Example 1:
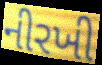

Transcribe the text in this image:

નીરખી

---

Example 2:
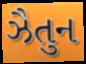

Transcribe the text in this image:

ઝૈતુન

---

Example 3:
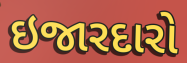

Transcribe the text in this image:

ઇજારદારો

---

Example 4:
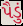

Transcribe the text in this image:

પૈડું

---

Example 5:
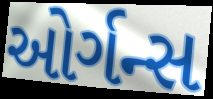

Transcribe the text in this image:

ઓર્ગન્સ